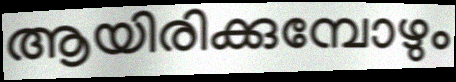
ആയിരിക്കുമ്പോഴും